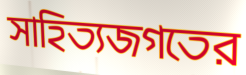
সাহিত্যজগতের